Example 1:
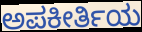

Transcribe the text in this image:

ಅಪಕೀರ್ತಿಯ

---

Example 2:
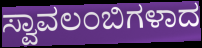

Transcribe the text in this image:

ಸ್ವಾವಲಂಬಿಗಳಾದ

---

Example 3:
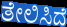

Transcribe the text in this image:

ತೇಲಿಸಿದೆ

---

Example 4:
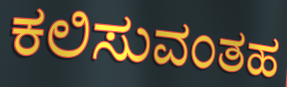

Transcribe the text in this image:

ಕಲಿಸುವಂತಹ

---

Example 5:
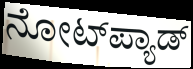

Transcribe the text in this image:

ನೋಟ್‌ಪ್ಯಾಡ್